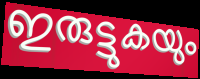
ഇരുട്ടുകയും